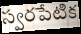
స్వరపేటిక